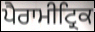
ਪੈਰਾਮੀਟ੍ਰਿਕ